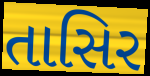
તાસિર